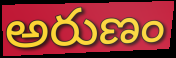
అరుణం